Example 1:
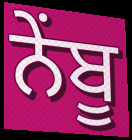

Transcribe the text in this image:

ਨੇਂਬੂ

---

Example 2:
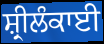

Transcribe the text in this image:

ਸ਼੍ਰੀਲੰਕਾਈ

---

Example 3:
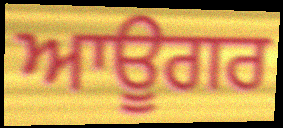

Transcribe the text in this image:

ਆਊਗਰ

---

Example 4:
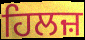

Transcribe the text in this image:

ਹਿਲਜ਼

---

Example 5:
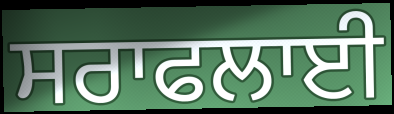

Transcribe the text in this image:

ਸਰਾਫਲਾਈ